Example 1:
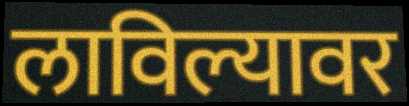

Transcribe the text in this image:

लाविल्यावर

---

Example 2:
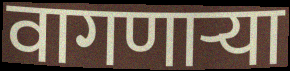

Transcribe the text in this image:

वागणाऱ्या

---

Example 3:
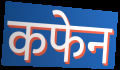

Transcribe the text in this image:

कफेन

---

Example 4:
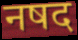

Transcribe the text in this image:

नषद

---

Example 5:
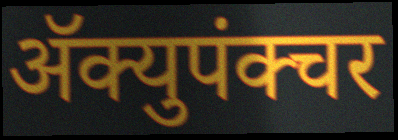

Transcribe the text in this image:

ॲक्युपंक्चर